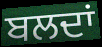
ਬਲਦਾਂ